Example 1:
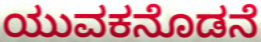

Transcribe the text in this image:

ಯುವಕನೊಡನೆ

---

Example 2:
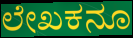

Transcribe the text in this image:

ಲೇಖಕನೂ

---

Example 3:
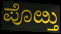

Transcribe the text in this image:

ಪೊೞ್ತು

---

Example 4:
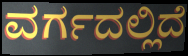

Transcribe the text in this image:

ವರ್ಗದಲ್ಲಿದೆ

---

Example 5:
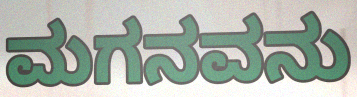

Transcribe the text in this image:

ಮಗನವನು